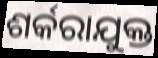
ଶର୍କରାଯୁକ୍ତ